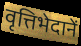
वृत्तिभेदानें